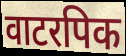
वाटरपिक